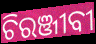
ଚିରଞ୍ଜୀବୀ